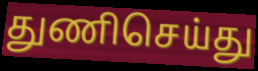
துணிசெய்து